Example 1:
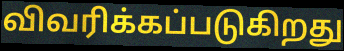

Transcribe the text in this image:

விவரிக்கப்படுகிறது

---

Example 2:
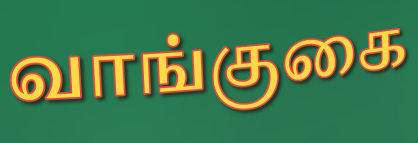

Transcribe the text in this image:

வாங்குகை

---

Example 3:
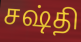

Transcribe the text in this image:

சஷ்தி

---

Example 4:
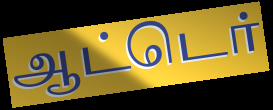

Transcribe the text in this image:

ஆட்டெர்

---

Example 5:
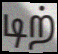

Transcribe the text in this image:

டிற்